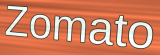
Zomato